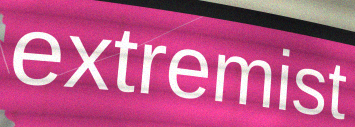
extremist